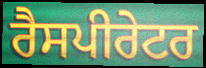
ਰੈਸਪੀਰੇਟਰ